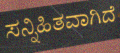
ಸನ್ನಿಹಿತವಾಗಿದೆ